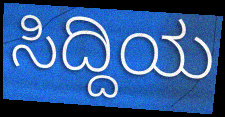
ಸಿದ್ದಿಯ